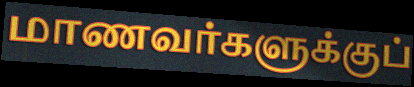
மாணவர்களுக்குப்